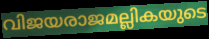
വിജയരാജമല്ലികയുടെ